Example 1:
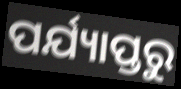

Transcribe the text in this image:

ପର୍ଯ୍ୟାପ୍ତରୁ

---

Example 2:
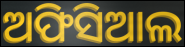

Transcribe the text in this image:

ଅଫିସିଆଲ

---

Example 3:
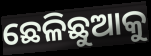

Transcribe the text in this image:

ଛେଳିଛୁଆକୁ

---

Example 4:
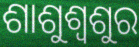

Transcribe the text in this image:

ଶାଶୁଶ୍ୱଶୁର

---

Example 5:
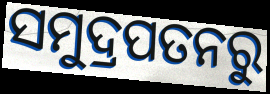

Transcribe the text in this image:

ସମୁଦ୍ରପତନରୁ